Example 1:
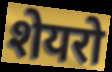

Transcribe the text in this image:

शेयरो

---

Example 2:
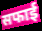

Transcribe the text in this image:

सफाई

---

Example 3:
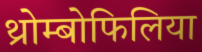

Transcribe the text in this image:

थ्रोम्बोफिलिया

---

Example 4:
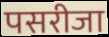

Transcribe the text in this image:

पसरीजा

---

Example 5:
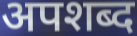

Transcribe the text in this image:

अपशब्द